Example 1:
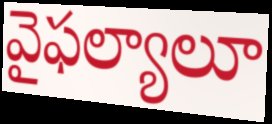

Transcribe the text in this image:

వైఫల్యాలూ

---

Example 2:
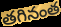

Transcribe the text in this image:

తగినంత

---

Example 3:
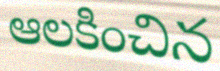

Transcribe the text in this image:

ఆలకించిన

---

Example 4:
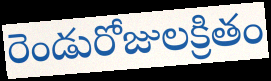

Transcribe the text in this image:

రెండురోజులక్రితం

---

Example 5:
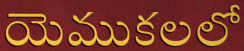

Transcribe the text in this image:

యెముకలలో